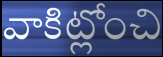
వాకిట్లోంచి